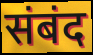
संबंद